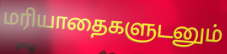
மரியாதைகளுடனும்